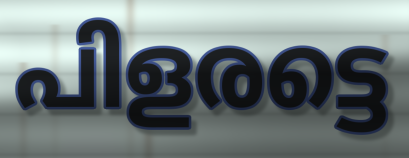
പിളരട്ടെ